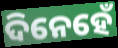
ଦିନେହେଁ